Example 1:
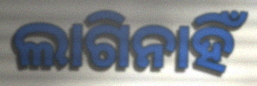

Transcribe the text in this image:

ଲାଗିନାହିଁ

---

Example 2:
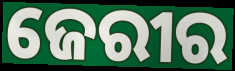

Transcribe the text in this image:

ଜେରୀର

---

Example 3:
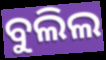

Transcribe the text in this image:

ବୁଲିଲ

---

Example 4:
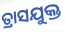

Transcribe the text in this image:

ତ୍ରାସଯୁକ୍ତ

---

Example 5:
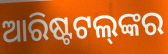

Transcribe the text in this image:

ଆରିଷ୍ଟଟଲ୍‌ଙ୍କର